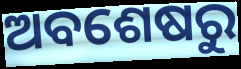
ଅବଶେଷରୁ